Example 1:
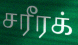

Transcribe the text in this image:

சரீரக்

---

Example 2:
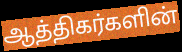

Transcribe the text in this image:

ஆத்திகர்களின்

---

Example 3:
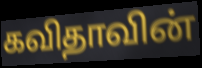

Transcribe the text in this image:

கவிதாவின்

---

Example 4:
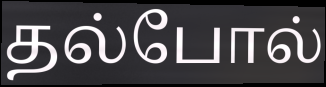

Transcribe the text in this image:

தல்போல்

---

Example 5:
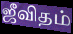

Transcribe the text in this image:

ஜீவிதம்